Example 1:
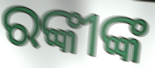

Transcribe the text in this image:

ରଙ୍କୀଙ୍କ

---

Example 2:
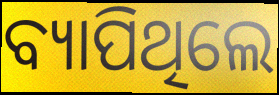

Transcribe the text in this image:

ବ୍ୟାପିଥିଲେ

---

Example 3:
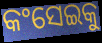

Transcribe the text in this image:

କଂସେଇକୁ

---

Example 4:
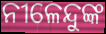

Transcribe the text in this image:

ନୀଳେନ୍ଦୁଙ୍କ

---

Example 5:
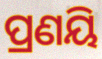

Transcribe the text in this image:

ପ୍ରଣୟି